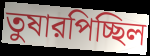
তুষারপিচ্ছিল